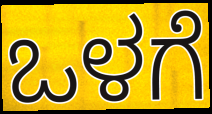
ಒಳಗೆ